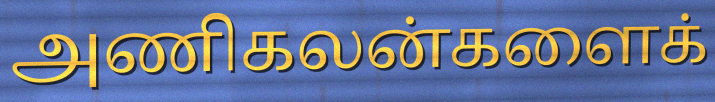
அணிகலன்களைக்